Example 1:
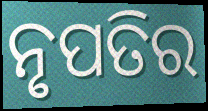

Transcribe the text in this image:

ନୃପତିର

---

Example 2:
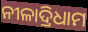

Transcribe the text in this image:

ନୀଳାଦ୍ରିଧାମ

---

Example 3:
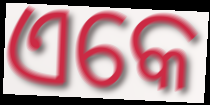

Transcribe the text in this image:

ଏକେ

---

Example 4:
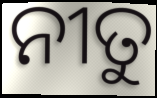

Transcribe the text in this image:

ନୀତୁ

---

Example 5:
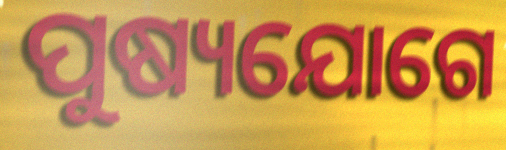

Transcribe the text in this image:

ପୁଷ୍ୟଯୋଗେ